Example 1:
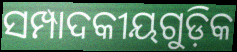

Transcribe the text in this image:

ସମ୍ପାଦକୀୟଗୁଡ଼ିକ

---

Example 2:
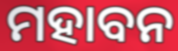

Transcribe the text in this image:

ମହାବନ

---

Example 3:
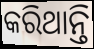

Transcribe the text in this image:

କରିଥାନ୍ତି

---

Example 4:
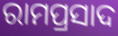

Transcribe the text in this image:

ରାମପ୍ରସାଦ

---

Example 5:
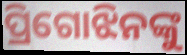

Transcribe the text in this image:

ପ୍ରିଗୋଝିନଙ୍କୁ